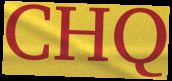
CHQ